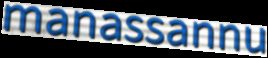
manassannu